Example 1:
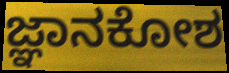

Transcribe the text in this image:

ಜ್ಞಾನಕೋಶ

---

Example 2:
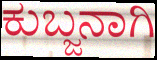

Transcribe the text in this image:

ಕುಬ್ಜನಾಗಿ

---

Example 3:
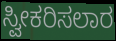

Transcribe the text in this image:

ಸ್ವೀಕರಿಸಲಾರ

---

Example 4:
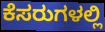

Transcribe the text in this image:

ಕೆಸರುಗಳಲ್ಲಿ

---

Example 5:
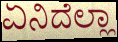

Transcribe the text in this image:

ಏನಿದೆಲ್ಲಾ